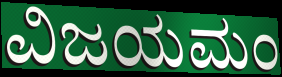
ವಿಜಯಮಂ